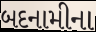
બદનામીના